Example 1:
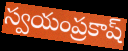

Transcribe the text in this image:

స్వయంప్రకాష్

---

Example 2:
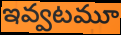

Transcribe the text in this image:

ఇవ్వటమూ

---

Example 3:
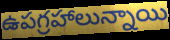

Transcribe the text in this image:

ఉపగ్రహాలున్నాయి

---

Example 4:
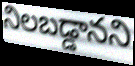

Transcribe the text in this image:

నిలబడ్డానని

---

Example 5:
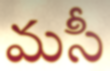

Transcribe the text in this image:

మసీ